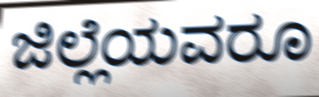
ಜಿಲ್ಲೆಯವರೂ